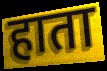
हाता